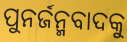
ପୁନର୍ଜନ୍ମବାଦକୁ